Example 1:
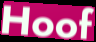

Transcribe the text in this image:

Hoof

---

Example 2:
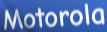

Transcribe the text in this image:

Motorola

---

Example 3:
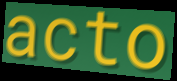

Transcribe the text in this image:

acto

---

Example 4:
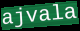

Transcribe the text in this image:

ajvala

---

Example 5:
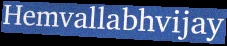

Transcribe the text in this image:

Hemvallabhvijay